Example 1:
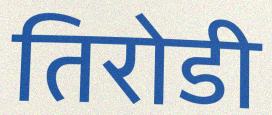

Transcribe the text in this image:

तिरोडी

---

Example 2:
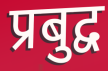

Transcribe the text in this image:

प्रबुद्व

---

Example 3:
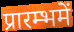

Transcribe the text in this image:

प्रारम्भमें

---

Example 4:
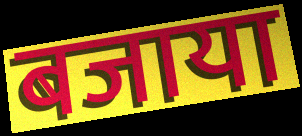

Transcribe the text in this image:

बजाया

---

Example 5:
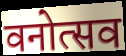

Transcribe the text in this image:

वनोत्सव